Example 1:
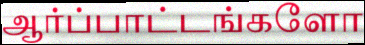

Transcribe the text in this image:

ஆர்ப்பாட்டங்களோ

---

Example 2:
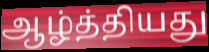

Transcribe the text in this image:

ஆழ்த்தியது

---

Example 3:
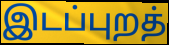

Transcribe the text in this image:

இடப்புறத்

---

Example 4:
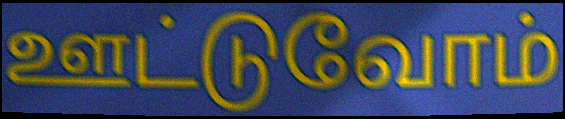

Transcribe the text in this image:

ஊட்டுவோம்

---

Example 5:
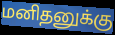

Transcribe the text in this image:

மனிதனுக்கு